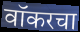
वॉकरचा